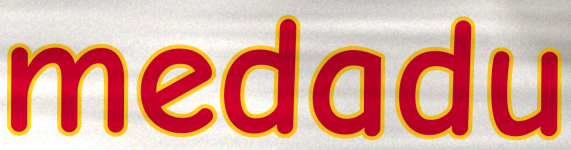
medadu